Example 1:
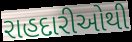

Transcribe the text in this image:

રાહદારીઓથી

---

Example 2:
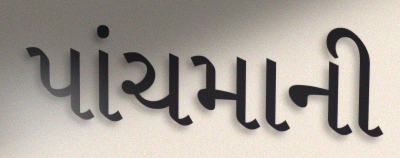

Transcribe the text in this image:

પાંચમાની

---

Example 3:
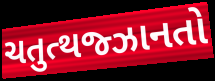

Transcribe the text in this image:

ચતુત્થજ્ઝાનતો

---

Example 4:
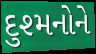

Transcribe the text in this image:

દુશ્મનોને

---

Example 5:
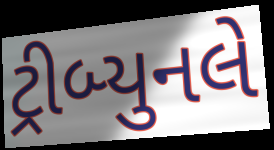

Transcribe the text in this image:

ટ્રીબ્યુનલે